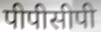
पीपीसीपी